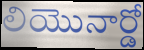
లియొనార్డో